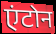
एंटोन